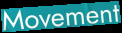
Movement